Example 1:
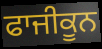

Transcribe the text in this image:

ਫਾਜੀਕੂਨ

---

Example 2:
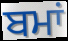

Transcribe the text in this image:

ਬਮਾਂ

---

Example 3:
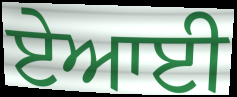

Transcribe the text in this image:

ਏਆਈ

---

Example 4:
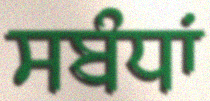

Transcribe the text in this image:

ਸਬੰਧਾਂ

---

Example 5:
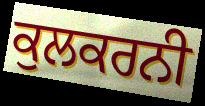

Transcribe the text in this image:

ਕੁਲਕਰਨੀ